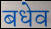
बधेव